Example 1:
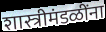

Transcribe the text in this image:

शास्त्रीमंडळींना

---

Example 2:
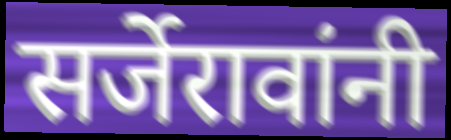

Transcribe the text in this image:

सर्जेरावांनी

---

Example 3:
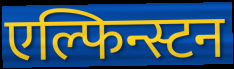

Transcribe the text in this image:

एल्फिन्स्टन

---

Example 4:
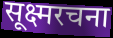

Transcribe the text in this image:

सूक्ष्मरचना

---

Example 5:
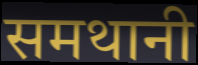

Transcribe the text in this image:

समथानी